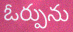
ఓర్పును